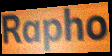
Rapho